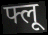
फ्लू